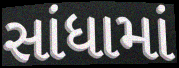
સાંધામાં